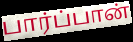
பார்ப்பான்